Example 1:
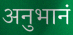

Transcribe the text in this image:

अनुभानं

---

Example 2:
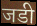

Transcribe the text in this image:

जडी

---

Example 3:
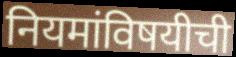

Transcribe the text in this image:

नियमांविषयीची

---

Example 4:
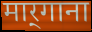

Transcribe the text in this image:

मार्गाना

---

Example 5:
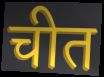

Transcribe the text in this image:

चीत